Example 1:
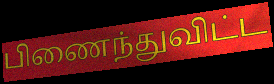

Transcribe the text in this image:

பிணைந்துவிட்ட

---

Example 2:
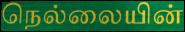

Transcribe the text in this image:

நெல்லையின்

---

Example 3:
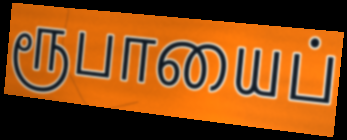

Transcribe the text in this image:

ரூபாயைப்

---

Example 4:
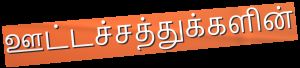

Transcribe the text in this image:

ஊட்டச்சத்துக்களின்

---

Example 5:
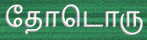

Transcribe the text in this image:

தோடொரு